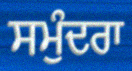
ਸਮੁੰਦਰਾ